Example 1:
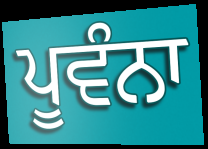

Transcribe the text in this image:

ਪੂਵੰਨਾ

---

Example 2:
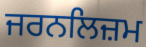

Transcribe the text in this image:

ਜਰਨਲਿਜ਼ਮ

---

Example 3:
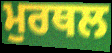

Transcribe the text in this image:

ਮੁਰਥਲ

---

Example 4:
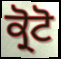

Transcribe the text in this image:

ਕ੍ਰੋਟੋ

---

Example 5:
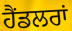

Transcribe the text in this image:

ਹੈਂਡਲਰਾਂ